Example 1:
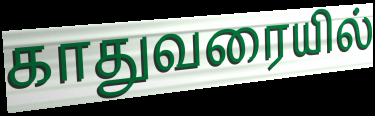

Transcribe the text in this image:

காதுவரையில்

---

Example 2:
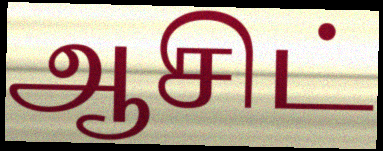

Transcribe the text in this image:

ஆசிட்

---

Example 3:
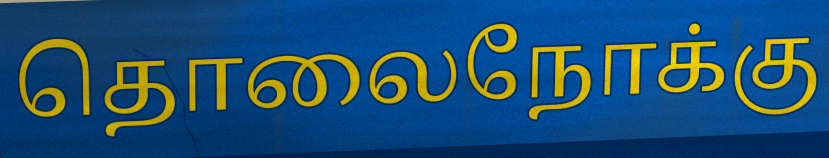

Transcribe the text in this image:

தொலைநோக்கு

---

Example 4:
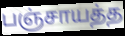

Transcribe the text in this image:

பஞ்சாயத்த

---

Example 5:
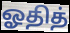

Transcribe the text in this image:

ஓதித்